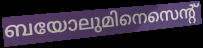
ബയോലുമിനെസെന്റ്